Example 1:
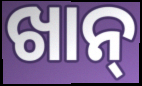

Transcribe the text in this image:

ଖାନ୍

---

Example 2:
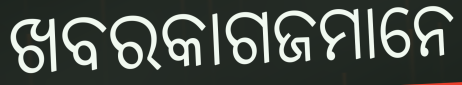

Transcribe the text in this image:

ଖବରକାଗଜମାନେ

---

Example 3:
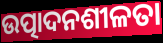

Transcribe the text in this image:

ଉତ୍ପାଦନଶୀଳତା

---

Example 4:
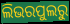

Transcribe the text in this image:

ଲିଭରପୁଲରୁ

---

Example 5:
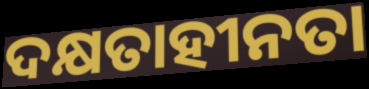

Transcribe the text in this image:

ଦକ୍ଷତାହୀନତା